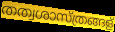
തത്വശാസ്ത്രങ്ങള്